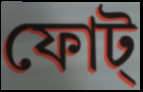
ফোট্